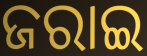
ଜରାଇ